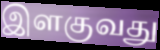
இளகுவது